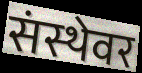
संस्थेवर